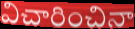
విచారించినా